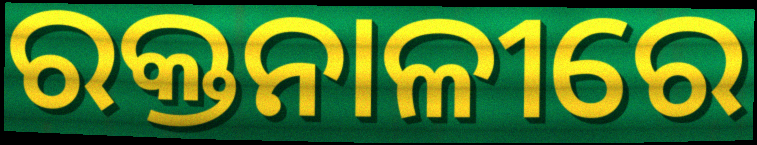
ରକ୍ତନାଳୀରେ